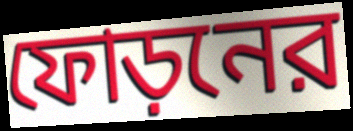
ফোড়নের